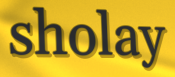
sholay